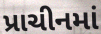
પ્રાચીનમાં